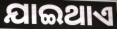
ଯାଇଥାଏ